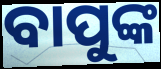
ବାପୁଙ୍କ